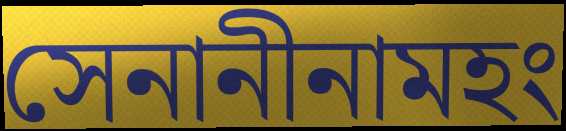
সেনানীনামহং